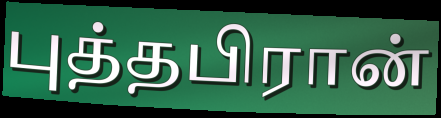
புத்தபிரான்